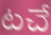
టచే